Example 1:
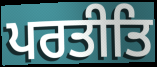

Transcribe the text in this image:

ਪਰਤੀਤਿ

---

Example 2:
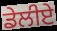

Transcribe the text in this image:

ਡੇਲੀਏ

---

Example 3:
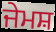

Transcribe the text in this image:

ਜੇਮਸ਼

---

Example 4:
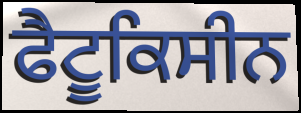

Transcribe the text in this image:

ਫੈਟੂਕਿਸੀਨ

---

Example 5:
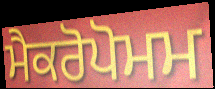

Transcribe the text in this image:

ਮੈਕਰੋਪੋਮਮ